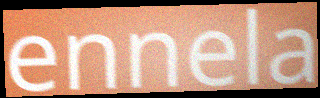
ennela